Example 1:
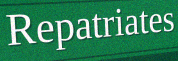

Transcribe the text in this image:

Repatriates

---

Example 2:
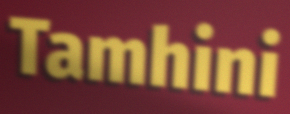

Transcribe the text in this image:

Tamhini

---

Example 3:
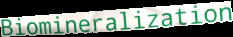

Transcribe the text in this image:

Biomineralization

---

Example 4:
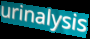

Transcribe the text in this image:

urinalysis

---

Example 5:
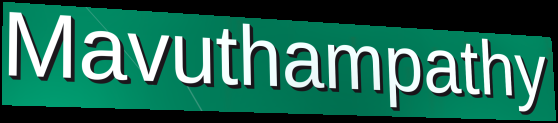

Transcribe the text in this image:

Mavuthampathy